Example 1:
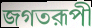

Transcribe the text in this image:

জগতরূপী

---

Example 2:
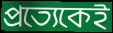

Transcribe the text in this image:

প্রত্যেকেই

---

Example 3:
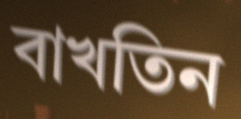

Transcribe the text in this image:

বাখতিন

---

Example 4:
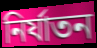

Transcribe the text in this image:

নির্যাতন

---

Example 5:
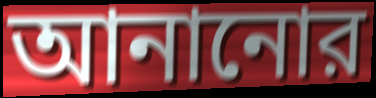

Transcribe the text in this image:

আনানোর